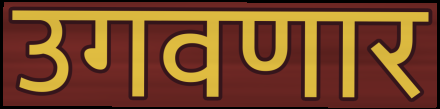
उगवणार